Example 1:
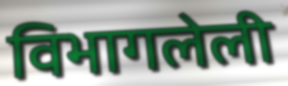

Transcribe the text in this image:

विभागलेली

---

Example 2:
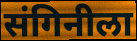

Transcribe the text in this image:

संगिनीला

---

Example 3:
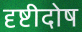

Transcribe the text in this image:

दृष्टीदोष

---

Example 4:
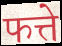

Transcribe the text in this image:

फत्ते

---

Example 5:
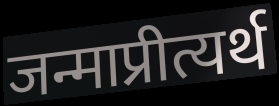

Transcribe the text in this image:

जन्माप्रीत्यर्थ